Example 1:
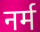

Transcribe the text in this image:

नर्म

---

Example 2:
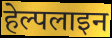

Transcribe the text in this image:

हेल्पलाइन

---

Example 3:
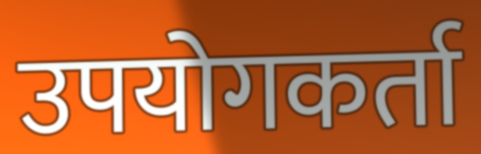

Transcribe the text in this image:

उपयोगकर्ता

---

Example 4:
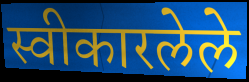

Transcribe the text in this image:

स्वीकारलेले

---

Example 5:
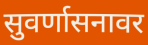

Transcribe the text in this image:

सुवर्णासनावर